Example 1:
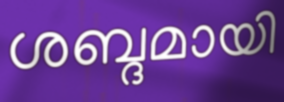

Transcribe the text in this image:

ശബ്ദമായി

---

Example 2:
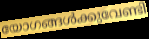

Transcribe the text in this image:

യോഗങ്ങൾക്കുവേണ്ടി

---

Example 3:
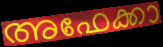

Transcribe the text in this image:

അഫേക്കാ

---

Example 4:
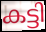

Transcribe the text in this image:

കട്ടി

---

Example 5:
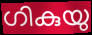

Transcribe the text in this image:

ഗികുയു